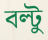
বল্টু